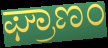
ಘ್ರಾಣಂ